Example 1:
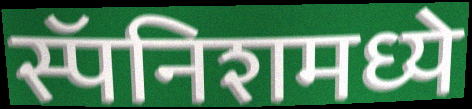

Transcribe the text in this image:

स्पॅनिशमध्ये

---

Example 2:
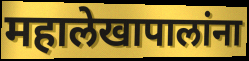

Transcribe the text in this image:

महालेखापालांना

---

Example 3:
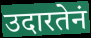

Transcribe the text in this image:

उदारतेनं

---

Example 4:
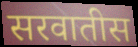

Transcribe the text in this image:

सरवातीस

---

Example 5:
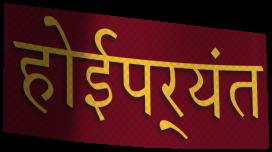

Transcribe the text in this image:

होईपर्यंत